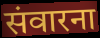
संवारना